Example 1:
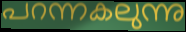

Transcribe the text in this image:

പറന്നകലുന്നു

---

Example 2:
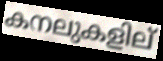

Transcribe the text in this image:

കനലുകളില്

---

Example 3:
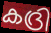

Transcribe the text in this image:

കദ്രി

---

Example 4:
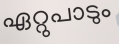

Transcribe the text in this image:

ഏറ്റുപാടും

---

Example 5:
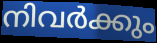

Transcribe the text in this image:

നിവർക്കും